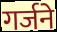
गर्जने